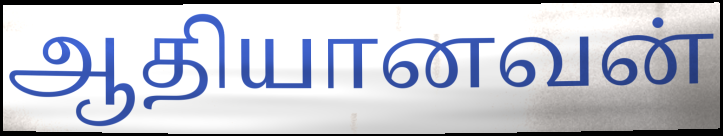
ஆதியானவன்